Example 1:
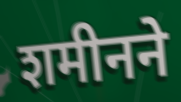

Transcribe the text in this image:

शमीनने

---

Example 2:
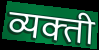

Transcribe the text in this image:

व्यक्‍ती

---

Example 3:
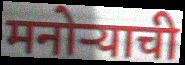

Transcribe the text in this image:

मनोऱ्याची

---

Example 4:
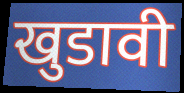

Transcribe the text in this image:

खुडावी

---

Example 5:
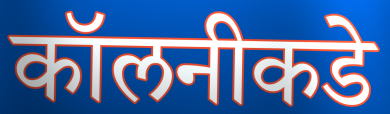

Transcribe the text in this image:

कॉलनीकडे